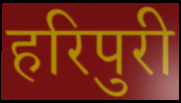
हरिपुरी